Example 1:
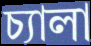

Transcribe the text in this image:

চ্যালা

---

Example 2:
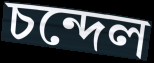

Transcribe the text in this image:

চন্দেল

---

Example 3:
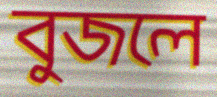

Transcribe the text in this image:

বুজলে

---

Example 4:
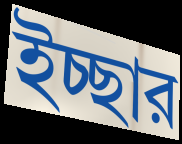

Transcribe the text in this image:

ইচ্ছার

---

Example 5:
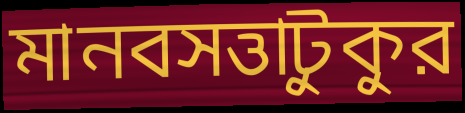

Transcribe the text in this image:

মানবসত্তাটুকুর